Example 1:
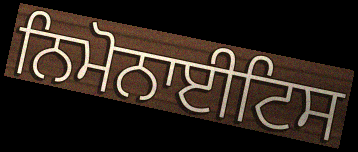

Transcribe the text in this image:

ਨਿਮੋਨਾਈਟਿਸ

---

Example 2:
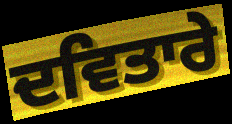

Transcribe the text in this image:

ਦਵਿਤਾਰੇ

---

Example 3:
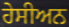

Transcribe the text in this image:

ਹੇਸੀਅਨ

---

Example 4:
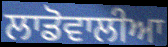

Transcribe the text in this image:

ਲਾਡੋਵਾਲੀਆ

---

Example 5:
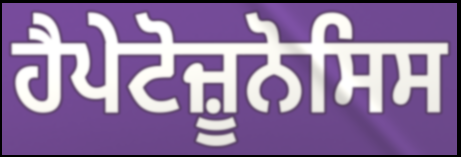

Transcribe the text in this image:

ਹੈਪੇਟੋਜ਼ੂਨੋਸਿਸ